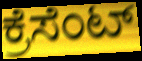
ಕ್ರೆಸೆಂಟ್